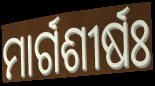
ମାର୍ଗଶୀର୍ଷଃ